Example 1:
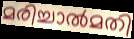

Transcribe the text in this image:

മരിച്ചാൽമതി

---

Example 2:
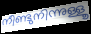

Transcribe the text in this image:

നീണ്ടുനിന്നുള്ളൂ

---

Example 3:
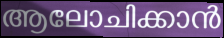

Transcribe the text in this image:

ആലോചിക്കാൻ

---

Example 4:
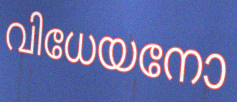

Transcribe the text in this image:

വിധേയനോ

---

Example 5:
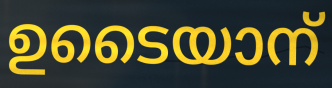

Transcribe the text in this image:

ഉടൈയാന്